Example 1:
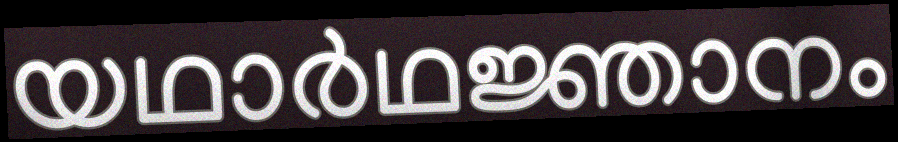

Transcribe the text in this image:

യഥാർഥജ്ഞാനം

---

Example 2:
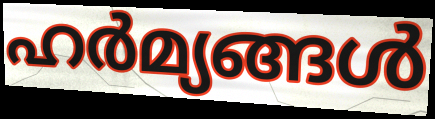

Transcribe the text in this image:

ഹർമ്യങ്ങൾ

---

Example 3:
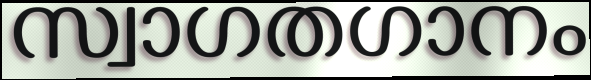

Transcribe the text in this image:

സ്വാഗതഗാനം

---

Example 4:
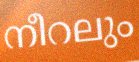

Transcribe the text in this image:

നീറലും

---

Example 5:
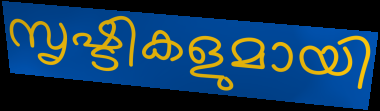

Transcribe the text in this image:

സൃഷ്ടികളുമായി